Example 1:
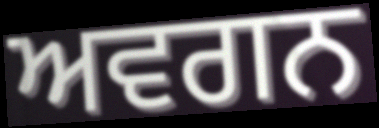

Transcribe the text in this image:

ਅਵਗਨ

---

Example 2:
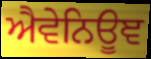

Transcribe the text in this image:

ਐਵੇਨਿਊਞ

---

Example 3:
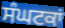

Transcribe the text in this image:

ਸੰਘਟਕਾਂ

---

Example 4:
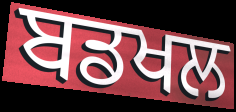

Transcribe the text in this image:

ਬਡਖਲ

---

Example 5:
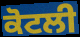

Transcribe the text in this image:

ਕੋਟਲੀ